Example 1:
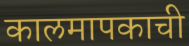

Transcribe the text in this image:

कालमापकाची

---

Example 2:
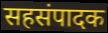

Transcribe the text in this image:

सहसंपादक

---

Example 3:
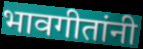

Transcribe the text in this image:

भावगीतांनी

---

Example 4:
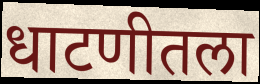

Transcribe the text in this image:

धाटणीतला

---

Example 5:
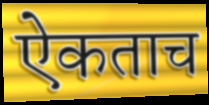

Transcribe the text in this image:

ऐकताच